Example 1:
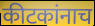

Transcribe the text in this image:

कीटकांनाच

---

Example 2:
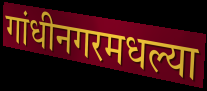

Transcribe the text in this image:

गांधीनगरमधल्या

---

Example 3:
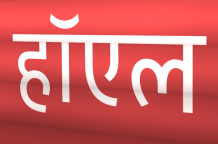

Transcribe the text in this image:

हॉएल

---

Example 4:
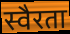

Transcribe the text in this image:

स्वैरता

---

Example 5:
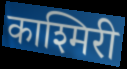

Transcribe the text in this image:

काश्मिरी